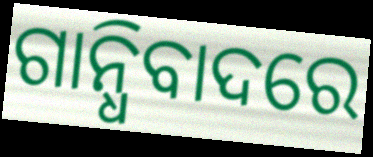
ଗାନ୍ଧିବାଦରେ